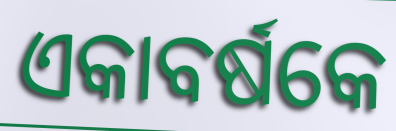
ଏକାବର୍ଷକେ